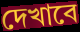
দেখাবে